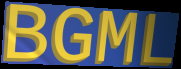
BGML